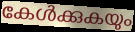
കേൾക്കുകയും